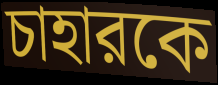
চাহারকে